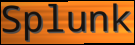
Splunk